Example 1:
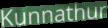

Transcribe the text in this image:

Kunnathur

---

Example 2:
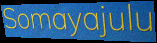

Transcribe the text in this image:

Somayajulu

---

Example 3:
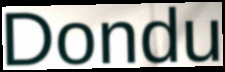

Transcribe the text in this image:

Dondu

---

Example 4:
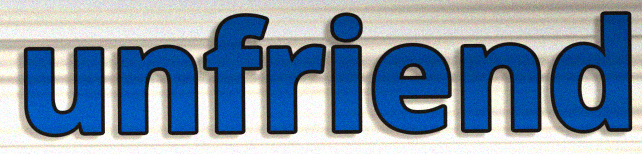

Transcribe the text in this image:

unfriend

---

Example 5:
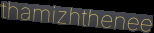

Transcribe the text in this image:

thamizhthenee